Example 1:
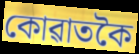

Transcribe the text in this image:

কোৱাতকৈ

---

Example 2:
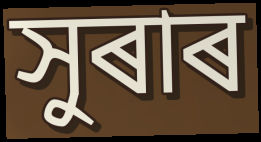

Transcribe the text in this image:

সুৰাৰ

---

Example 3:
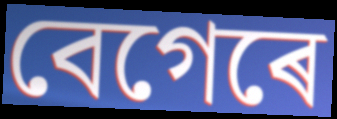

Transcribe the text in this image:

বেগেৰে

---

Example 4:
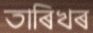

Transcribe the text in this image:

তাৰিখৰ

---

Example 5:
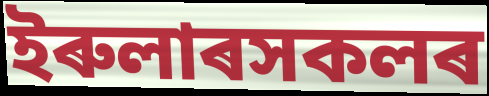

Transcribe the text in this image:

ইৰুলাৰসকলৰ